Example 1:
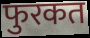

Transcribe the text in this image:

फुरकत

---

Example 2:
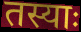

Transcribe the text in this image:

तस्याः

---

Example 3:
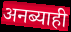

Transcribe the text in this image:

अनब्याही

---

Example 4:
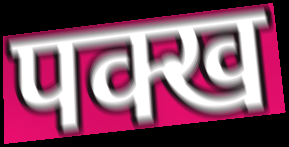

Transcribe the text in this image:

पक्ख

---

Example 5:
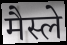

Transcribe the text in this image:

मैस्ले